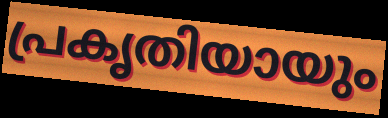
പ്രകൃതിയായും